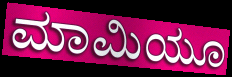
ಮಾಮಿಯೂ